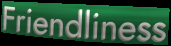
Friendliness